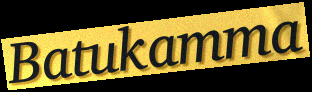
Batukamma